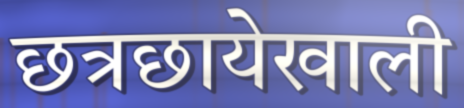
छत्रछायेखाली